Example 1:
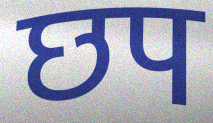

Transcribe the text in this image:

छप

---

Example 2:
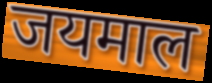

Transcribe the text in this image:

जयमाल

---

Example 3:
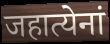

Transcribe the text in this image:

जहात्येनां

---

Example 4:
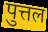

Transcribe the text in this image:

पुत्तल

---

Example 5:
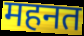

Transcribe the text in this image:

महनत